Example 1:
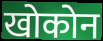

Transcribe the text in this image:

खोकोन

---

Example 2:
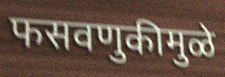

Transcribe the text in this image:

फसवणुकीमुळे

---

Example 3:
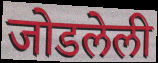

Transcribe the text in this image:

जोडलेली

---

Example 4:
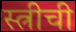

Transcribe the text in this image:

स्त्रीची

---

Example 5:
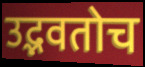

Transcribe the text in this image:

उद्भवतोच